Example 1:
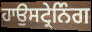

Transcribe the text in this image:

ਹਾਉਸਟ੍ਰੇਨਿੰਗ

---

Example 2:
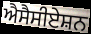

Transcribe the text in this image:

ਐਸੈਸੀਏਸ਼ਨ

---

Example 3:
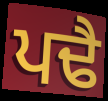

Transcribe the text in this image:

ਪਢੈ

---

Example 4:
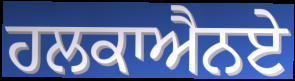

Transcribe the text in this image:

ਹਲਕਾਐਨਏ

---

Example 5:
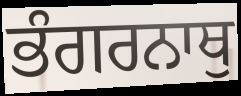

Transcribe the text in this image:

ਭੰਗਰਨਾਥੁ